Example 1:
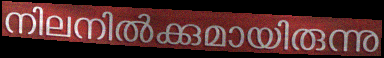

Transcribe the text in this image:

നിലനിൽക്കുമായിരുന്നു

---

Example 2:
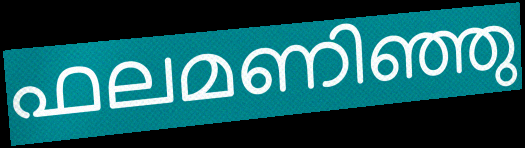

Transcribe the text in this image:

ഫലമണിഞ്ഞു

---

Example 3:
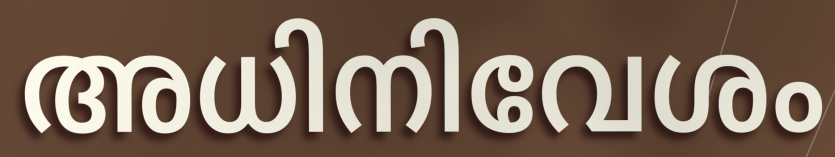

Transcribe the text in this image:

അധിനിവേശം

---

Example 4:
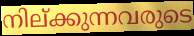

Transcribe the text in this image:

നില്ക്കുന്നവരുടെ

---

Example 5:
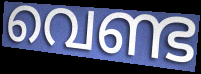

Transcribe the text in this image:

വെണ്ട